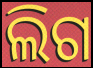
ଲିଗ